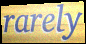
rarely